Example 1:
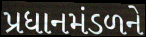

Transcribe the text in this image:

પ્રધાનમંડળને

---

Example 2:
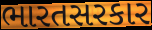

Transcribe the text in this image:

ભારતસરકાર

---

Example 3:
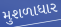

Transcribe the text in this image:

મુશળાધાર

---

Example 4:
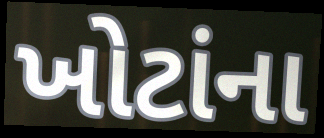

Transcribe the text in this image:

ખોટાંના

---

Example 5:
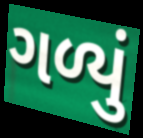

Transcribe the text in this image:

ગળ્યું